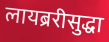
लायब्ररीसुद्धा